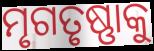
ମୃଗତୃଷ୍ଣାକୁ